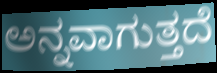
ಅನ್ನವಾಗುತ್ತದೆ